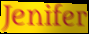
Jenifer